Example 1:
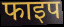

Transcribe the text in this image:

फाइप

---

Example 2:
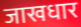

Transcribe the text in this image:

जाखधार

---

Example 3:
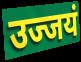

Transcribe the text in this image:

उज्जयं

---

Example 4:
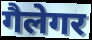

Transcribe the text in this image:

गैलेगर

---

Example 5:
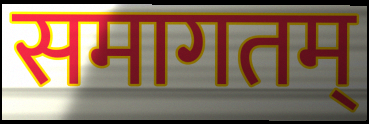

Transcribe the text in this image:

समागतम्